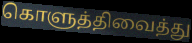
கொளுத்திவைத்து